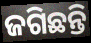
ଜଗିଛନ୍ତି